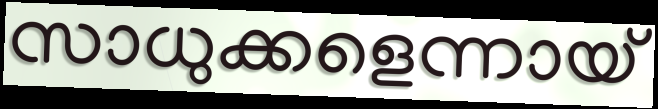
സാധുക്കളെന്നായ്